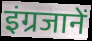
इंग्रजानें